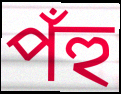
পঁহু